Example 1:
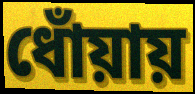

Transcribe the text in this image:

ধোঁয়ায়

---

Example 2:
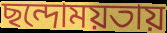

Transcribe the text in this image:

ছন্দোময়তায়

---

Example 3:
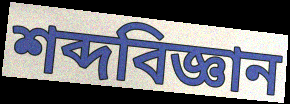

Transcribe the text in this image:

শব্দবিজ্ঞান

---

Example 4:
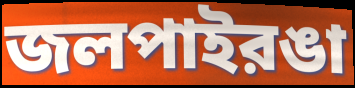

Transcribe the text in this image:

জলপাইরঙা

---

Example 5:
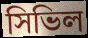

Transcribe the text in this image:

সিভিল